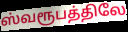
ஸ்வரூபத்திலே